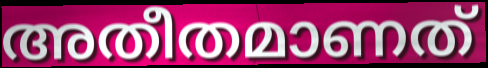
അതീതമാണത്